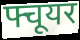
फ्चूयर